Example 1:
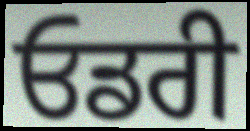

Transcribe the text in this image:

ਓਡਰੀ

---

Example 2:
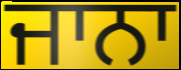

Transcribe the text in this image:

ਜਾਨਾ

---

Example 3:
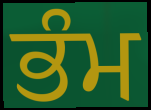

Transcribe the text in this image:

ਭੰਮ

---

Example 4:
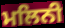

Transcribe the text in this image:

ਮਲਿਨੀ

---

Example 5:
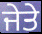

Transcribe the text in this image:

ਜੇਤੇ